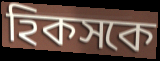
হিকসকে